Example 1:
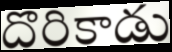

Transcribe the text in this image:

దొరికాడు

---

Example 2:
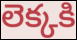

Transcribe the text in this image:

లెక్కకి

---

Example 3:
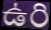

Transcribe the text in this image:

ఉరి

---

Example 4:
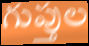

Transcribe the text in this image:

గుప్తుల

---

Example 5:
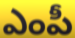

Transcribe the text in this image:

ఎంపీ